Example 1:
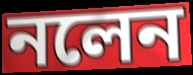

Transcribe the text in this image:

নলেন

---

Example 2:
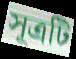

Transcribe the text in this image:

সূত্রটি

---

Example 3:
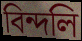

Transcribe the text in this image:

বিন্দলি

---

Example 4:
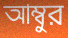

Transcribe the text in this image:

আম্বুর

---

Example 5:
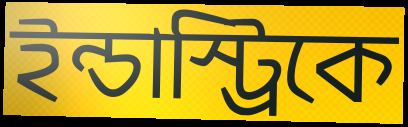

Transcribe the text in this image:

ইন্ডাস্ট্রিকে